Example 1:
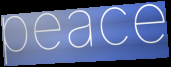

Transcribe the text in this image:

peace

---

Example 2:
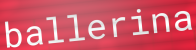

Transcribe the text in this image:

ballerina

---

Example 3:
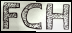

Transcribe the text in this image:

FCH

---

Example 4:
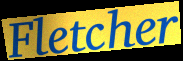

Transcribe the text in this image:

Fletcher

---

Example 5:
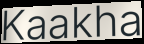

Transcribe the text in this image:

Kaakha